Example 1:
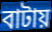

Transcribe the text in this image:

বাটায়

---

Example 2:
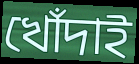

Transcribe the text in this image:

খোঁদাই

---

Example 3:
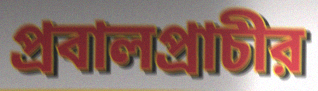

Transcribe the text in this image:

প্রবালপ্রাচীর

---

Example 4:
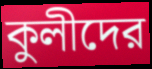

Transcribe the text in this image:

কুলীদের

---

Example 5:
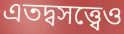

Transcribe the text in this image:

এতদ্বসত্ত্বেও